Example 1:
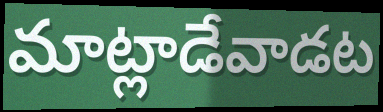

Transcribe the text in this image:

మాట్లాడేవాడట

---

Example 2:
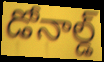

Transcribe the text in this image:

డోనాల్డ్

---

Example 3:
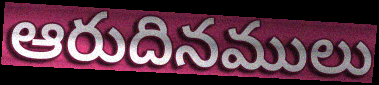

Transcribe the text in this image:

ఆరుదినములు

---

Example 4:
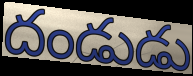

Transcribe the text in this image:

దండుడు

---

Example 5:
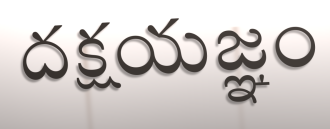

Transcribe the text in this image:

దక్షయజ్ఞం